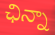
ఛిన్నా